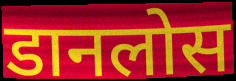
डानलोस